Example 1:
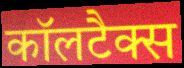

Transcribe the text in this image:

कॉलटैक्स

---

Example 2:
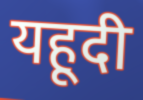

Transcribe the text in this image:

यहूदी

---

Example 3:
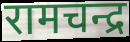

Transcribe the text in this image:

रामचन्द्र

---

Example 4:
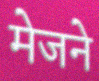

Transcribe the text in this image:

मेजने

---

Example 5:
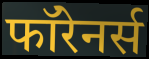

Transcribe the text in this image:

फॉरेनर्स